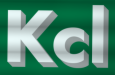
Kcl